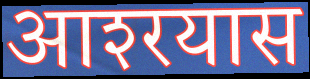
आश्रयास